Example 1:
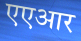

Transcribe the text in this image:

एएआर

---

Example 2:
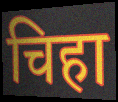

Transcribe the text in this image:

चिहा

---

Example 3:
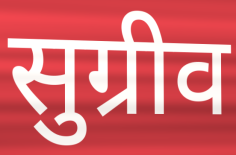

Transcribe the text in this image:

सुग्रीव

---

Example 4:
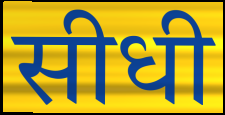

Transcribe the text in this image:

सीधी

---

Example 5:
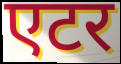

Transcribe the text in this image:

एटर